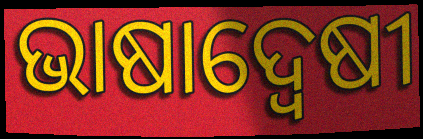
ଭାଷାଦ୍ଵେଷୀ